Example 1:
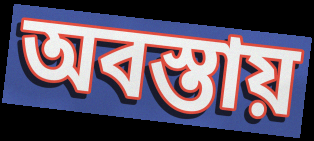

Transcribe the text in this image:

অবস্তায়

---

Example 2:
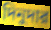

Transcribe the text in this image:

দিনুদার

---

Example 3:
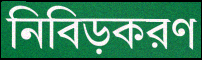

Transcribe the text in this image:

নিবিড়করণ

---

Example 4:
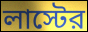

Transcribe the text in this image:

লাস্টের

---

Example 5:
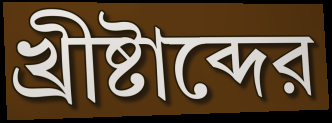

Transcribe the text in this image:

খ্রীষ্টাব্দের